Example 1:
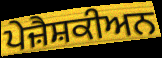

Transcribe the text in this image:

ਪੇਜ਼ੈਸ਼ਕੀਅਨ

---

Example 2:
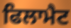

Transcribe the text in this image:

ਫਿਲਾਮੈਟ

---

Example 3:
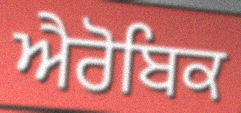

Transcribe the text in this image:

ਐਰੋਬਿਕ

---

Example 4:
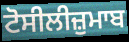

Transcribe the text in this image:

ਟੋਸੀਲੀਜ਼ੁਮਾਬ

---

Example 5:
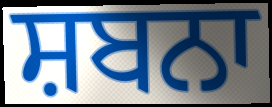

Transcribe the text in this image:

ਸ਼ਬਨਾ